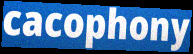
cacophony